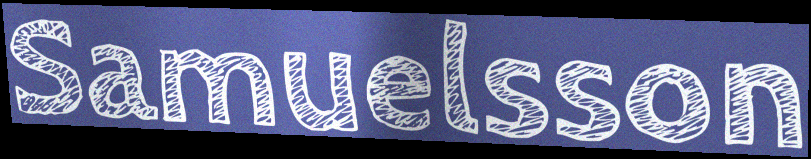
Samuelsson